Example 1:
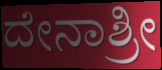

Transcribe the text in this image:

ದೇನಾಶ್ರೀ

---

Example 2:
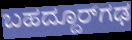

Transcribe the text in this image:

ಬಹದ್ದೂರ್‌ಗಢ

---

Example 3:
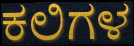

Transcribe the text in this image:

ಕಲಿಗಳ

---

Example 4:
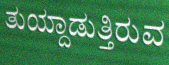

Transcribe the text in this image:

ತುಯ್ದಾಡುತ್ತಿರುವ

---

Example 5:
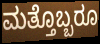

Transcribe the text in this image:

ಮತ್ತೊಬ್ಬರೂ